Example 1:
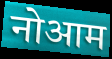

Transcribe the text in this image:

नोआम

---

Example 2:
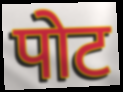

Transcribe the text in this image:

पोट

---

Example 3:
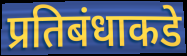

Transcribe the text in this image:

प्रतिबंधाकडे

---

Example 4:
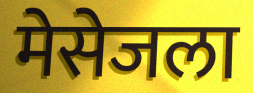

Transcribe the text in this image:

मेसेजला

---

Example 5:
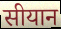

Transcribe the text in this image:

सीयान